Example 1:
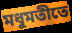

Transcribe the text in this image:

মধুমতীতে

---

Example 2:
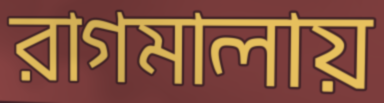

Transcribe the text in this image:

রাগমালায়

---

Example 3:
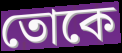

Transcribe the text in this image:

তোকে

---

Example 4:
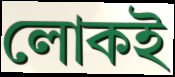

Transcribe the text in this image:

লোকই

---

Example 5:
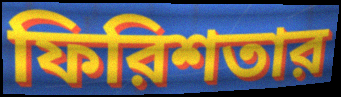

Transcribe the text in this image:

ফিরিশতার